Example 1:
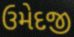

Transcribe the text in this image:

ઉમેદજી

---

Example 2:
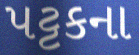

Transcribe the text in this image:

પટ્ટકના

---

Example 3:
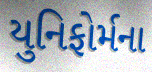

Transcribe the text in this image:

યુનિફોર્મના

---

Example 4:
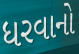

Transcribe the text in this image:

ધરવાનો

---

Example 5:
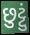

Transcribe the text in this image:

છુટ્ટું